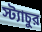
স্ট্যাচুর